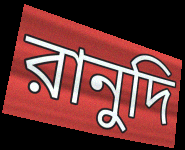
রানুদি